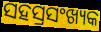
ସହସ୍ରସଂଖ୍ୟକ